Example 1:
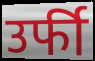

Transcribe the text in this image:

उर्फी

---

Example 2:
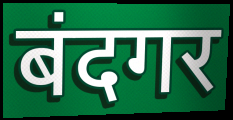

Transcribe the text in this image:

बंदगर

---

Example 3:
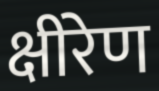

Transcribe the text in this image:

क्षीरेण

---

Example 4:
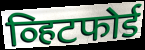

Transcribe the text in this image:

व्हिटफोर्ड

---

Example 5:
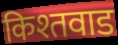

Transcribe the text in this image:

किश्तवाड